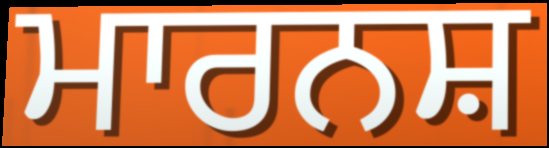
ਮਾਰਨਸ਼